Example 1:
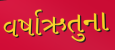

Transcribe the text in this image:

વર્ષાઋતુના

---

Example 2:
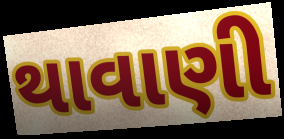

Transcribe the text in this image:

થાવાણી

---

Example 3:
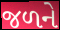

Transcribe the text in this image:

જળને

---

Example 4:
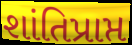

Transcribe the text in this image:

શાંતિપ્રાપ્ત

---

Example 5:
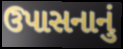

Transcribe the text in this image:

ઉપાસનાનું